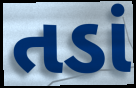
તડાં